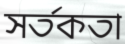
সর্তকতা